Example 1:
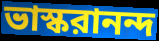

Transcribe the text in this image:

ভাস্করানন্দ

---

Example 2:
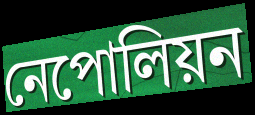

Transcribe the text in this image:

নেপোলিয়ন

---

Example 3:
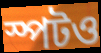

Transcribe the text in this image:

স্পটও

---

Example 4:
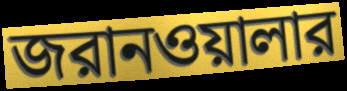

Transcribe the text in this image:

জরানওয়ালার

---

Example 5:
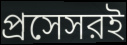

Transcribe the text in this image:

প্রসেসরই